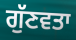
ਗੁੱਣਵਤਾ